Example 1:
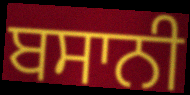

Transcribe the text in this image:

ਬਸਾਨੀ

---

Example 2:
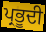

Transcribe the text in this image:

ਪ੍ਰਭੂਦੀ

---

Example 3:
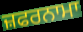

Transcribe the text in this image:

ਜ਼ਫਰਨਾਮਾ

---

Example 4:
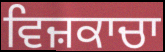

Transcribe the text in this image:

ਵਿਜ਼ਕਾਚਾ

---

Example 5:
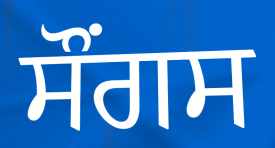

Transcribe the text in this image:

ਸੌਂਗਸ